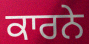
ਕਾਰਨੇ